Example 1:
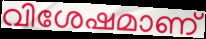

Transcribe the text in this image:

വിശേഷമാണ്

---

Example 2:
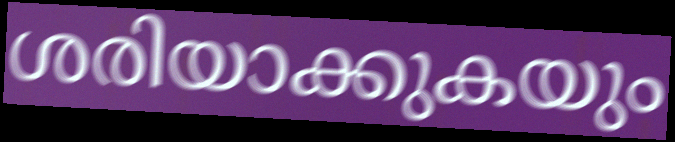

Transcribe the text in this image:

ശരിയാക്കുകയും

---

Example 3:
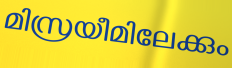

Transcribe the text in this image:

മിസ്രയീമിലേക്കും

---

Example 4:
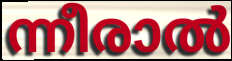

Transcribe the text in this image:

ന്നീരാൽ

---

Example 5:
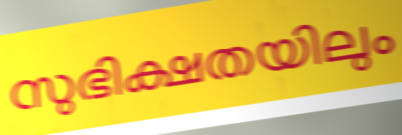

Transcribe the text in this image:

സുഭിക്ഷതയിലും